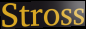
Stross